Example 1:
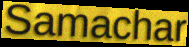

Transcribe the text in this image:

Samachar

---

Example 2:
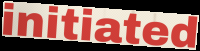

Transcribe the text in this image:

initiated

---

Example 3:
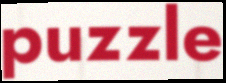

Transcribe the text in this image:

puzzle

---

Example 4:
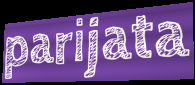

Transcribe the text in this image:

parijata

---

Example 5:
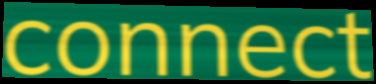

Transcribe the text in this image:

connect